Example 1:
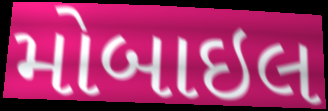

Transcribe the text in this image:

મોબાઇલ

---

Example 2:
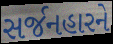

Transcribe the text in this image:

સર્જનહારને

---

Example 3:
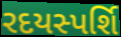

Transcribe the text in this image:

રદયસ્પર્શિ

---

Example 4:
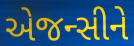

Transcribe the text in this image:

એજન્સીને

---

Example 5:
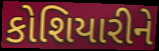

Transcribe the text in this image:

કોશિયારીને